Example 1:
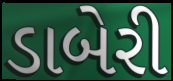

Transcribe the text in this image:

ડાબેરી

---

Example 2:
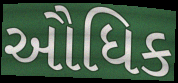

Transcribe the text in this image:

ઔધિક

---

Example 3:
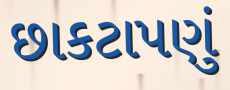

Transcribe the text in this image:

છાકટાપણું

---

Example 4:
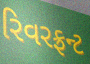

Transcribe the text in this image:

રિવરફ્રન્ટ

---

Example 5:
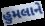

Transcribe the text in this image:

હુમલાને